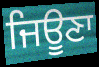
ਜਿਊਣਾ